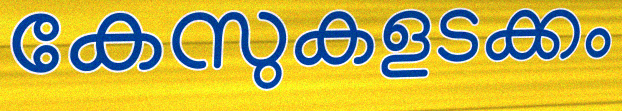
കേസുകളടക്കം